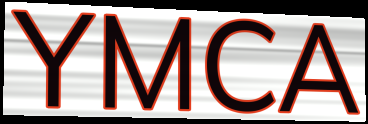
YMCA